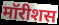
मॉरीशस